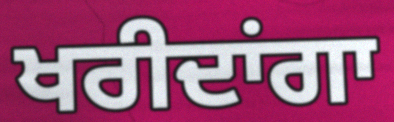
ਖਰੀਦਾਂਗਾ